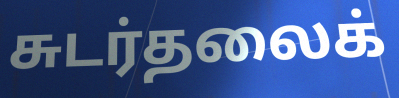
சுடர்தலைக்